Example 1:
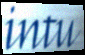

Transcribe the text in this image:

intu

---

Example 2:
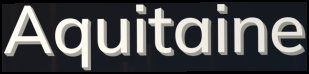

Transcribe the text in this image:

Aquitaine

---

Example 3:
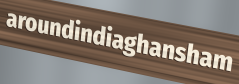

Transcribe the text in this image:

aroundindiaghansham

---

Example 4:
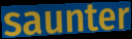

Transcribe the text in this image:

saunter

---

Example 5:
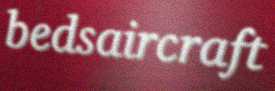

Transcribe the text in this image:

bedsaircraft